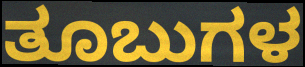
ತೂಬುಗಳ